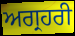
ਅਗ੍ਰਹਰੀ